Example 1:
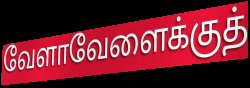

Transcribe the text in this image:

வேளாவேளைக்குத்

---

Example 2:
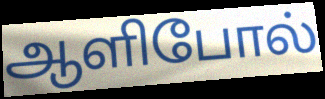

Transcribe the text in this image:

ஆளிபோல்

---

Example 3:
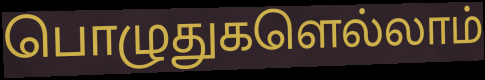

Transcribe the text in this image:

பொழுதுகளெல்லாம்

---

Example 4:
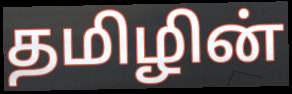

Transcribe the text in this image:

தமிழின்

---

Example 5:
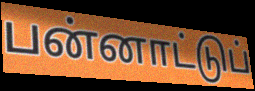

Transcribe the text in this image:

பன்னாட்டுப்